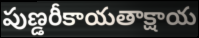
పుణ్డరీకాయతాక్షాయ